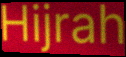
Hijrah